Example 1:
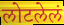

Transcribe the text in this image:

लोटलेलं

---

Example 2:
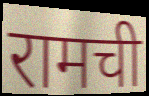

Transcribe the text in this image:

रामची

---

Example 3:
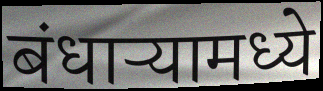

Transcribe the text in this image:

बंधाऱ्यामध्ये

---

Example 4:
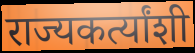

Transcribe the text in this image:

राज्यकर्त्यांशी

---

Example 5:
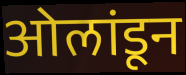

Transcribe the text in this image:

ओलांडून